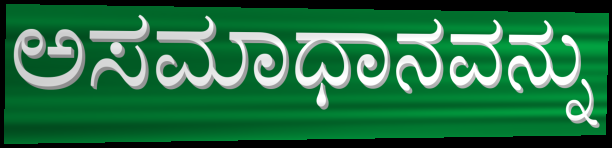
ಅಸಮಾಧಾನವನ್ನು